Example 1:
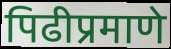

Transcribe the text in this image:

पिढीप्रमाणे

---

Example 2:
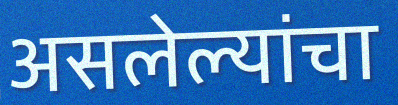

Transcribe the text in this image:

असलेल्यांचा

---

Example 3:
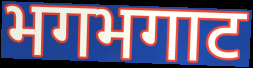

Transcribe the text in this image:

भगभगाट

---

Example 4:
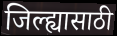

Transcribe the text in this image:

जिल्ह्यासाठी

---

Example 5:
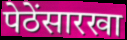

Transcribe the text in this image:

पेठेंसारखा